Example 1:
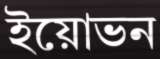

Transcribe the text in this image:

ইয়োভন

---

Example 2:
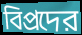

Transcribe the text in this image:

বিপ্রদের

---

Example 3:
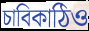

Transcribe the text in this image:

চাবিকাঠিও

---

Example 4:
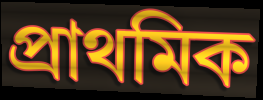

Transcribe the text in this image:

প্রাথমিক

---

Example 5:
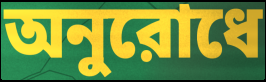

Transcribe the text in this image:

অনুরোধে